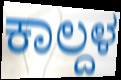
ಕಾಲ್ದಳ